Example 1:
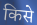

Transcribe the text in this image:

किसे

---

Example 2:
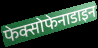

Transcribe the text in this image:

फेक्सोफेनाडाइन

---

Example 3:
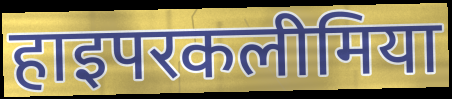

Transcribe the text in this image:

हाइपरकलीमिया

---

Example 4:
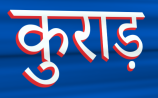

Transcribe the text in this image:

कुराड़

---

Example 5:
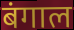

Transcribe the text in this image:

बंगाल